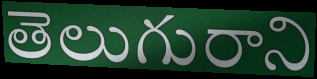
తెలుగురాని